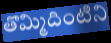
తొమ్మిదింటిని